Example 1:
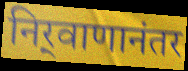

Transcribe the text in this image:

निर्वाणानंतर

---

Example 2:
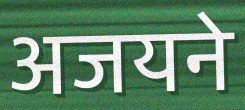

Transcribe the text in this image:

अजयने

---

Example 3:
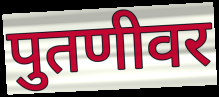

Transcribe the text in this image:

पुतणीवर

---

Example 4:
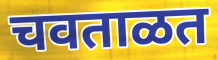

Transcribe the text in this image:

चवताळत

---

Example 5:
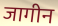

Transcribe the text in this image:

जागीन